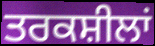
ਤਰਕਸ਼ੀਲਾਂ